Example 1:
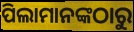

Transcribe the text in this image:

ପିଲାମାନଙ୍କଠାରୁ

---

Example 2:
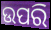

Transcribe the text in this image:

ଉପରି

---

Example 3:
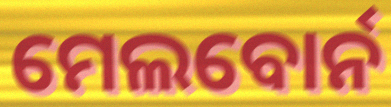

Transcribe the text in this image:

ମେଲବୋର୍ନ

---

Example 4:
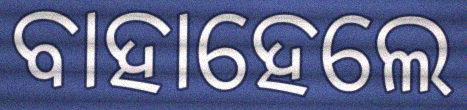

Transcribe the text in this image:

ବାହାହେଲେ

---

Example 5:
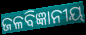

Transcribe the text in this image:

ଜଳବିଜ୍ଞାନୀୟ